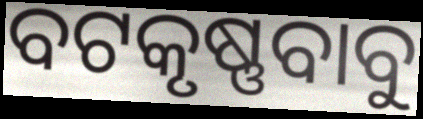
ବଟକୃଷ୍ଣବାବୁ